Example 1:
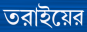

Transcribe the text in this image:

তরাইয়ের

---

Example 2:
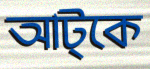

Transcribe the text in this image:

আট্‌কে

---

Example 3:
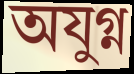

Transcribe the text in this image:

অযুগ্ন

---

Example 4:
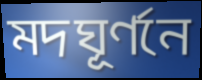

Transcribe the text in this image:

মদঘূর্ণনে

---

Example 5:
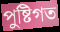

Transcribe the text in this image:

পুষ্টিগত